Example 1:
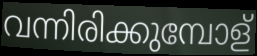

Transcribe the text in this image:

വന്നിരിക്കുമ്പോള്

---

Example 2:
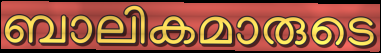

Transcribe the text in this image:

ബാലികമാരുടെ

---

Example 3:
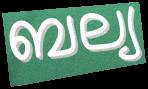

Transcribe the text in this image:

ബല്യ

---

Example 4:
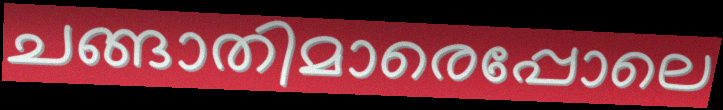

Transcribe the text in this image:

ചങ്ങാതിമാരെപ്പോലെ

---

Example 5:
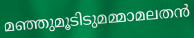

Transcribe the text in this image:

മഞ്ഞുമൂടിടുമമ്മാമലതൻ